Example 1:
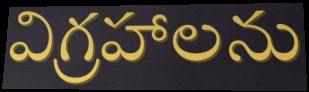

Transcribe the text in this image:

విగ్రహాలను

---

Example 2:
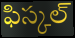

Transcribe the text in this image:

ఫిస్కల్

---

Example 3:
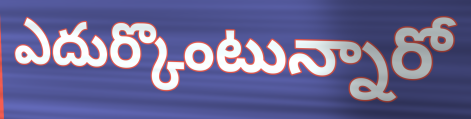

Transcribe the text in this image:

ఎదుర్కొంటున్నారో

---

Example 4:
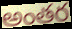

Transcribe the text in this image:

అంతర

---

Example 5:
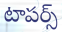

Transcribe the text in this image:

టాపర్స్